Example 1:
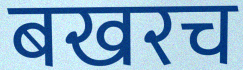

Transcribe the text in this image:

बखरच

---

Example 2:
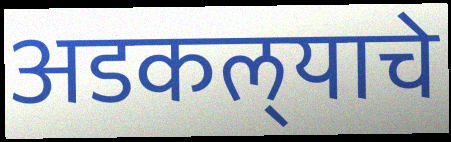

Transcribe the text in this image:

अडकल्याचे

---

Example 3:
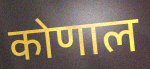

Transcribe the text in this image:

कोणाल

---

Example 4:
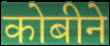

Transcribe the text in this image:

कोबीने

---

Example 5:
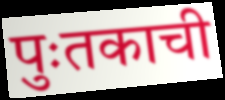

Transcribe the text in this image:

पुःतकाची